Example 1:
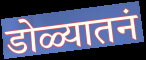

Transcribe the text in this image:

डोळ्यातनं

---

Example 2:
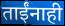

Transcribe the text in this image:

ताईंनाही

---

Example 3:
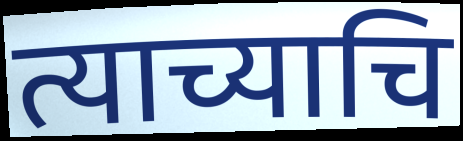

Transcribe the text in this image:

त्याच्याचि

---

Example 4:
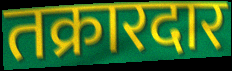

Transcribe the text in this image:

तक्रारदार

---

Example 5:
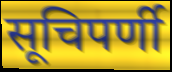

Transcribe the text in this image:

सूचिपर्णी